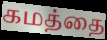
கமத்தை